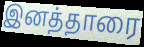
இனத்தாரை